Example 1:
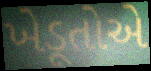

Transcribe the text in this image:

ખેડૂતોએ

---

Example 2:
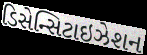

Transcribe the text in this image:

ડિસેન્સિટાઇઝેશન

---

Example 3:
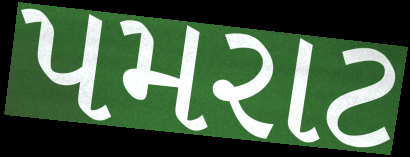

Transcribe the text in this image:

પમરાટ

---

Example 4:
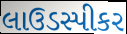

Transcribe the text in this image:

લાઉડસ્પીકર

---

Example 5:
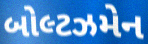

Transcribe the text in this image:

બોલ્ટઝમેન